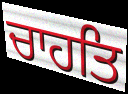
ਚਾਹਤਿ